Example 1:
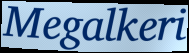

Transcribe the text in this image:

Megalkeri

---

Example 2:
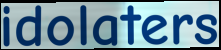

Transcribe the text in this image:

idolaters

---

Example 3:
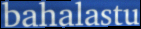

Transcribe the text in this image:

bahalastu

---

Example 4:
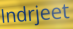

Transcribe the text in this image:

Indrjeet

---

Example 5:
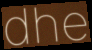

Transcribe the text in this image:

dhe